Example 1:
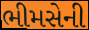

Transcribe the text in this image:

ભીમસેની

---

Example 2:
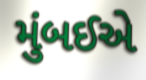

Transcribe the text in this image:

મુંબઈએ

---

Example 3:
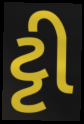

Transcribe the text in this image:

ટ્ટી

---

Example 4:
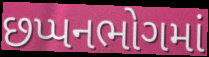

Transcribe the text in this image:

છપ્પનભોગમાં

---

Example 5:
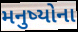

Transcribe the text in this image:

મનુષ્યોના